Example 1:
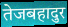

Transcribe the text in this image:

तेजबहादुर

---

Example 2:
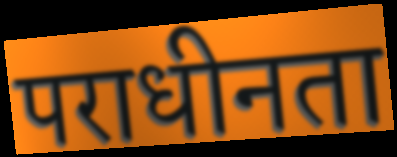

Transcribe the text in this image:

पराधीनता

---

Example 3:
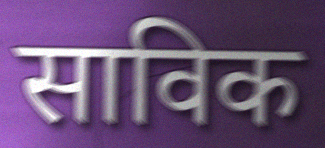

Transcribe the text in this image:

साविक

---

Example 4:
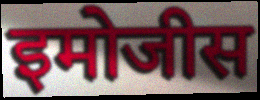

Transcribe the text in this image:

इमोजीस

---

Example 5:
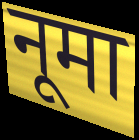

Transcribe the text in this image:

नूमा